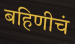
बहिणीचं